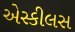
એસ્કીલસ